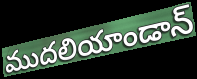
ముదలియాండాన్